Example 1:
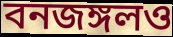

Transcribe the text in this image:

বনজঙ্গলও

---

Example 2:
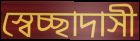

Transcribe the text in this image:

স্বেচ্ছাদাসী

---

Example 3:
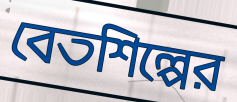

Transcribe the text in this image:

বেতশিল্পের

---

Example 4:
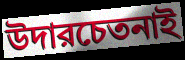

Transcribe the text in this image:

উদারচেতনাই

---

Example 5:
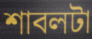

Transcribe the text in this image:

শাবলটা